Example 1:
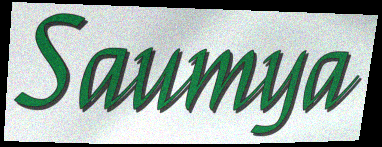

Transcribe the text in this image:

Saumya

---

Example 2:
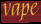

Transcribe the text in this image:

vape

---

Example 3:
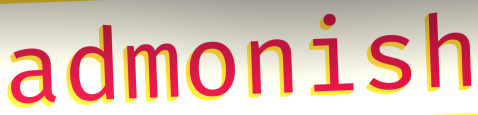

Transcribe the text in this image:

admonish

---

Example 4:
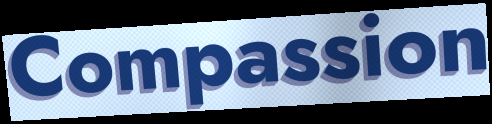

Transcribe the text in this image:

Compassion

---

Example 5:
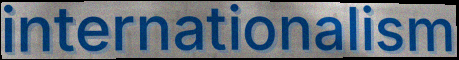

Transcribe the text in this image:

internationalism